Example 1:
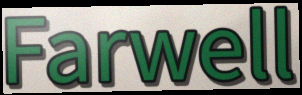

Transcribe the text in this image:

Farwell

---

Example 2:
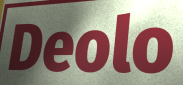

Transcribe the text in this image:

Deolo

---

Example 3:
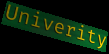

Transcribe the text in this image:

Univerity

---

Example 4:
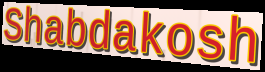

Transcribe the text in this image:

Shabdakosh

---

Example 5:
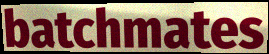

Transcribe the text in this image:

batchmates